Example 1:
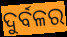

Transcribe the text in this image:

ଦୁର୍ବଳର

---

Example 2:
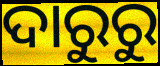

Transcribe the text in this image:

ଦାରୁରୁ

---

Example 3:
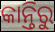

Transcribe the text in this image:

କାନ୍ତିରୁ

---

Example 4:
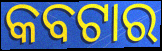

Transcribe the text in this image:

କବଟାର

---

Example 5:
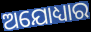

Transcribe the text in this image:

ଅଯୋଧ୍ୟାର